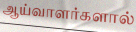
ஆய்வாளர்களால்